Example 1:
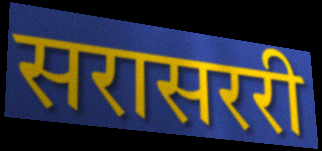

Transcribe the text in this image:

सरासररी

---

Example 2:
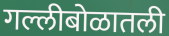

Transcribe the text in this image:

गल्लीबोळातली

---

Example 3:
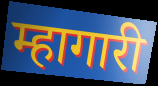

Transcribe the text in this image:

म्हागारी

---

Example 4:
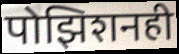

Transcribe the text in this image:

पोझिशनही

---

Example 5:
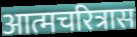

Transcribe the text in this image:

आत्मचरित्रास